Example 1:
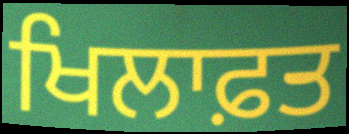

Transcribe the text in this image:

ਖਿਲਾਫ਼ਤ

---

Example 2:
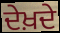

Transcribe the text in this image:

ਦੇਖ਼ਦੇ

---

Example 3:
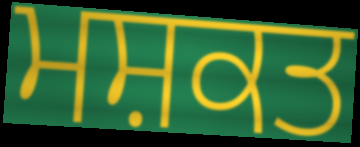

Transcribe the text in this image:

ਮਸ਼ਕਤ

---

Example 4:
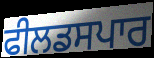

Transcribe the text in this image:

ਫੀਲਡਸਪਾਰ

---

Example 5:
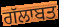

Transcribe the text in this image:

ਗੱਲਾਬਤ